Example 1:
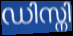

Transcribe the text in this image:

ഡിസ്നി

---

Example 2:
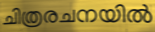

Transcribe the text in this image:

ചിത്രരചനയിൽ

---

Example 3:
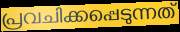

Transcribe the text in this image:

പ്രവചിക്കപ്പെടുന്നത്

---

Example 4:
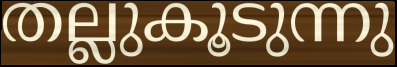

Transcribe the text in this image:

തല്ലുകൂടുന്നു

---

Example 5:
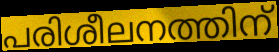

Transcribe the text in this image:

പരിശീലനത്തിന്